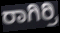
ರಾಗಿರ್ರಿ